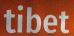
tibet